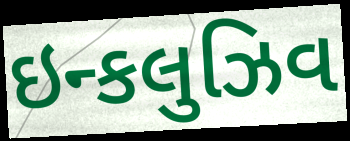
ઇન્કલુઝિવ